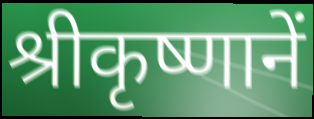
श्रीकृष्णानें